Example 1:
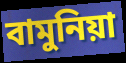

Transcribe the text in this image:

বামুনিয়া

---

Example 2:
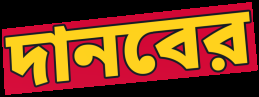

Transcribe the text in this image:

দানবের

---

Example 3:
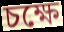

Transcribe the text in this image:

চক্ষে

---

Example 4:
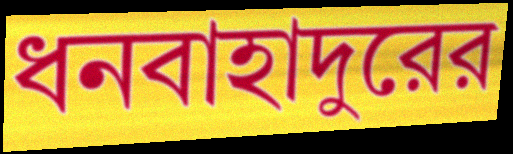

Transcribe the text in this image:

ধনবাহাদুরের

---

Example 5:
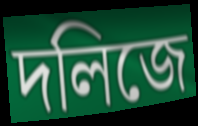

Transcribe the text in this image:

দলিজে